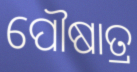
ପୌଷାତ୍ର